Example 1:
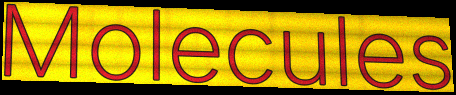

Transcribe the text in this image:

Molecules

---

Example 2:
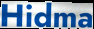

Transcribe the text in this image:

Hidma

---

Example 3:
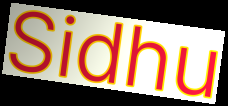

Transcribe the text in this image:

Sidhu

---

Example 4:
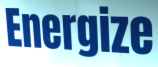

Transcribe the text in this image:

Energize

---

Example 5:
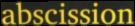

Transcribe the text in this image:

abscission